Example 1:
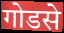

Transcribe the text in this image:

गोडसे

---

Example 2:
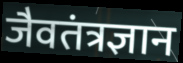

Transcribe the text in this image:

जैवतंत्रज्ञान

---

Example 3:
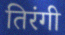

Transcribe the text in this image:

तिरंगी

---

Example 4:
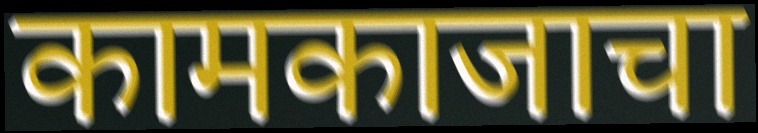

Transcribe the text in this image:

कामकाजाचा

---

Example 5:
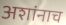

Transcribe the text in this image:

अशांनाच